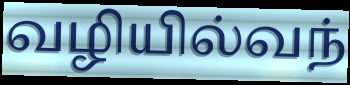
வழியில்வந்